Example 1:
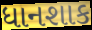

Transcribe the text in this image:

ધાનશાક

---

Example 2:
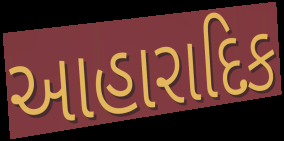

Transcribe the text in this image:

આહારાદિક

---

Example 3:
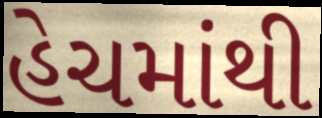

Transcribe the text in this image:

હેચમાંથી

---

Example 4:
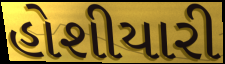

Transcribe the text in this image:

હોશીયારી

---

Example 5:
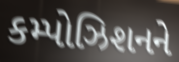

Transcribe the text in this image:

કમ્પોઝિશનને